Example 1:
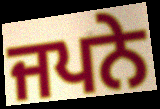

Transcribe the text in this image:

ਜਪਨੇ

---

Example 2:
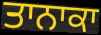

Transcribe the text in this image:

ਤਾਨਾਕਾ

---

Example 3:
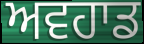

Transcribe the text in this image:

ਅਵਹਾਡ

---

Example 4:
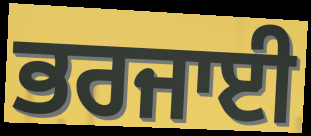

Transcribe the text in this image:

ਭਰਜਾਈ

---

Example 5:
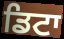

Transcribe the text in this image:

ਡਿਟਾ